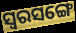
ସ୍ୱରସଙ୍ଗେ